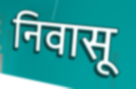
निवासू